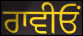
ਰਾਵੀਓਂ